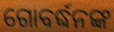
ଗୋବର୍ଦ୍ଧନଙ୍କ